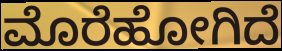
ಮೊರೆಹೋಗಿದೆ